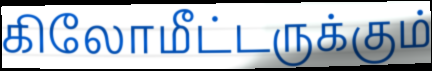
கிலோமீட்டருக்கும்